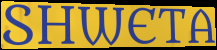
SHWETA